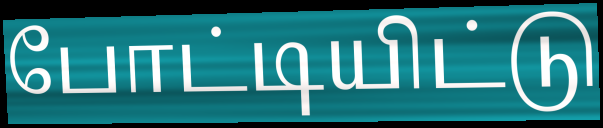
போட்டியிட்டு